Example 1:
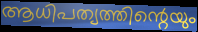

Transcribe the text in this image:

ആധിപത്യത്തിന്റെയും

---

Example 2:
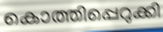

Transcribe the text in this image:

കൊത്തിപ്പെറുക്കി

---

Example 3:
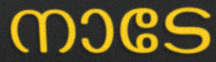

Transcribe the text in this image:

നാടേ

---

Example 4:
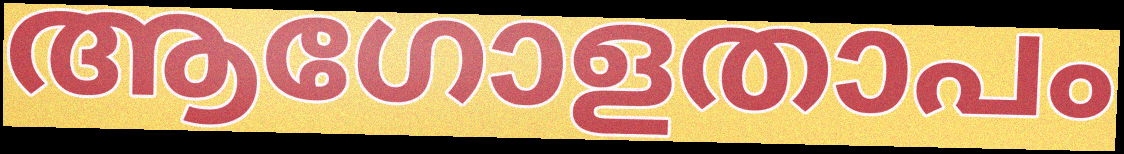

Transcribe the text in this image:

ആഗോളതാപം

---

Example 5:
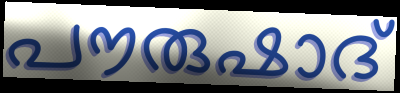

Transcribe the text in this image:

പൗരുഷാദ്